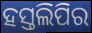
ହସ୍ତଲିପିର